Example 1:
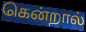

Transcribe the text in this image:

கென்றால்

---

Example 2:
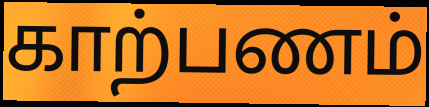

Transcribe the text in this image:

காற்பணம்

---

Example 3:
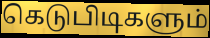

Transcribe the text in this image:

கெடுபிடிகளும்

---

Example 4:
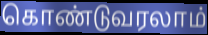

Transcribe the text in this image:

கொண்டுவரலாம்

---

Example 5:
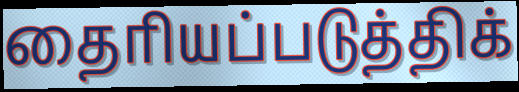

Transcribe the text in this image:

தைரியப்படுத்திக்